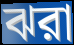
ঝরা